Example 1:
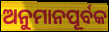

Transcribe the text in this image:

ଅନୁମାନପୂର୍ବକ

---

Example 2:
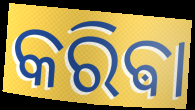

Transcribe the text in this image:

କରିଵା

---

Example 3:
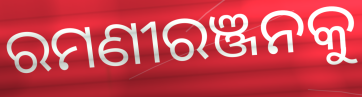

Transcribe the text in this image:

ରମଣୀରଞ୍ଜନକୁ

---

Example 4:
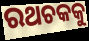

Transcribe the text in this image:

ରଥଚକକୁ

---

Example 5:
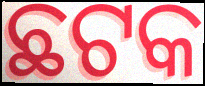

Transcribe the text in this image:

ଛଟକ